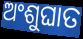
ଅଂଶୁଘାତ